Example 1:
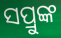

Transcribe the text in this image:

ସପ୍ରୁଙ୍କ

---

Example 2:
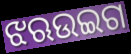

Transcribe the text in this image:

ଝଋଉଇଗ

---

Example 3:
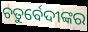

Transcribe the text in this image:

ଚତୁର୍ବେଦୀଙ୍କର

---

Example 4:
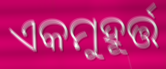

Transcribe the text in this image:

ଏକମୁହୂର୍ତ୍ତ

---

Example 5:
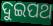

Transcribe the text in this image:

ଦୁଇପଥ